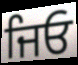
ਜਿਓ